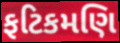
ફટિકમણિ